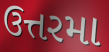
ઉત્તરમા